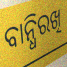
ବାନ୍ଧିରଖି